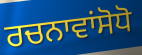
ਰਚਨਾਵਾਂਸੋਧੋ